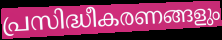
പ്രസിദ്ധീകരണങ്ങളും